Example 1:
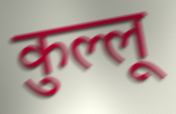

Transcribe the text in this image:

कुल्लू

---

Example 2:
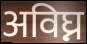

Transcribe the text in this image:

अविघ्न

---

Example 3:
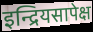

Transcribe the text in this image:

इन्द्रियसापेक्ष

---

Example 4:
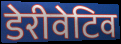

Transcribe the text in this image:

डेरीवेटिव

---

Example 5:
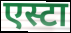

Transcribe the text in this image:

एस्टा